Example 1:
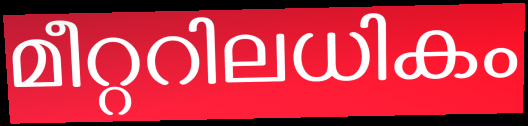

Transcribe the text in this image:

മീറ്ററിലധികം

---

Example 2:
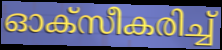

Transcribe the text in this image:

ഓക്സീകരിച്ച്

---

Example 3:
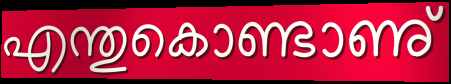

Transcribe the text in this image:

എന്തുകൊണ്ടാണു്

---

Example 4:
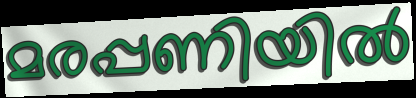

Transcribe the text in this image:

മരപ്പണിയിൽ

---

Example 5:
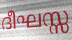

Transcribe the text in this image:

ദീഘസ്സ